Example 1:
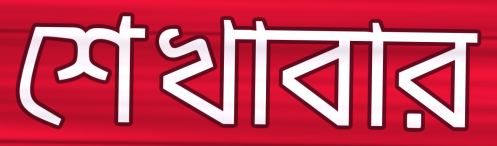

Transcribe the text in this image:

শেখাবার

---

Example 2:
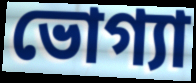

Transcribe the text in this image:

ভোগ্যা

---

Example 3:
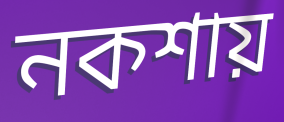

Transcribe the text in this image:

নকশায়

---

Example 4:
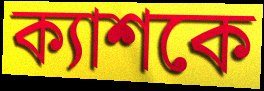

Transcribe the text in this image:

ক্যাশকে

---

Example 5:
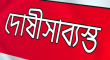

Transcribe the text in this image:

দোষীসাব্যস্ত